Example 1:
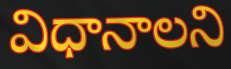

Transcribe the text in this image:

విధానాలని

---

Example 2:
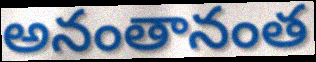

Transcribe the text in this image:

అనంతానంత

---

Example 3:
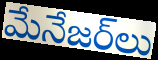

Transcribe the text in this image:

మేనేజర్‌లు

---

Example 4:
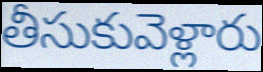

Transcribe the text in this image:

తీసుకువెళ్లారు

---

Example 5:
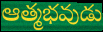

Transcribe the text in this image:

ఆత్మభవుడు